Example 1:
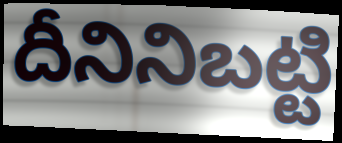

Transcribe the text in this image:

దీనినిబట్టి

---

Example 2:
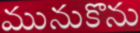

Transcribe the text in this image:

మునుకొను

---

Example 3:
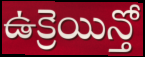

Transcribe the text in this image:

ఉక్రెయిన్తో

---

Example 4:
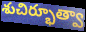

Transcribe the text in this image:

శుచిర్భూత్వా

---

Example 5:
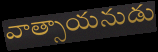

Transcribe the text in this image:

వాత్సాయనుడు